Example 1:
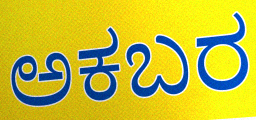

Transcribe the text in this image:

ಅಕಬರ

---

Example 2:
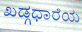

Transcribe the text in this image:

ಖಡ್ಗಧಾರೆಯ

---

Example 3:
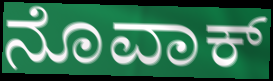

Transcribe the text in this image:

ನೊವಾಕ್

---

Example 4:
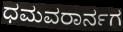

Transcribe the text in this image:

ಧಮವರಾರ್ನಗ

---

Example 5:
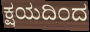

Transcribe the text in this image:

ಕ್ಷಯದಿಂದ